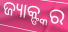
ଜ୍ୟାକ୍ଙ୍କର